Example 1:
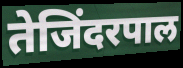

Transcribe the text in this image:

तेजिंदरपाल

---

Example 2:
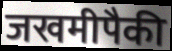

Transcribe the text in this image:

जखमीपैकी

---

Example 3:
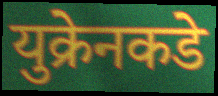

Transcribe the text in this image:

युक्रेनकडे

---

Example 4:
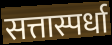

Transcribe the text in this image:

सत्तास्पर्धा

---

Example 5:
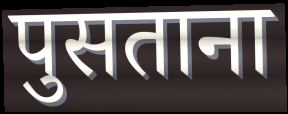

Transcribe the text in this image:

पुसताना